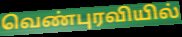
வெண்புரவியில்